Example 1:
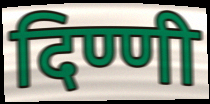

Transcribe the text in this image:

दिण्णी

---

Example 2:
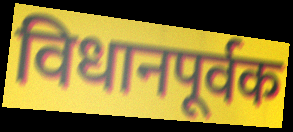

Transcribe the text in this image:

विधानपूर्वक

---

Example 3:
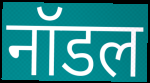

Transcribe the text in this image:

नॉडल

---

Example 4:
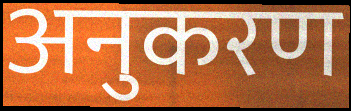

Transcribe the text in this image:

अनुकरण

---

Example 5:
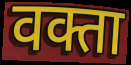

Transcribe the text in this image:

वक्ता